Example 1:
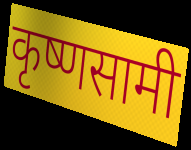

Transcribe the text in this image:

कृष्णसामी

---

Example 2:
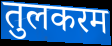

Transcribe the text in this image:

तुलकरम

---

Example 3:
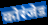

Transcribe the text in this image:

कोरंजेड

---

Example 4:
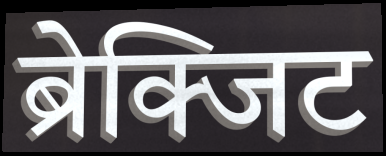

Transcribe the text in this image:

ब्रेक्जिट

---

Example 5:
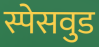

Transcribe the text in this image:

स्पेसवुड